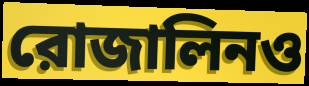
রোজালিনও